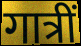
गात्रीं